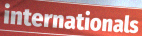
internationals